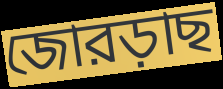
জোরড়াছ